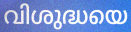
വിശുദ്ധയെ